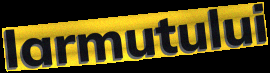
Iarmutului